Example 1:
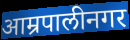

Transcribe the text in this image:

आम्रपालीनगर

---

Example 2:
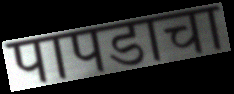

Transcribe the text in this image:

पापडाचा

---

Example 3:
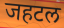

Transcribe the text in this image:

जहटल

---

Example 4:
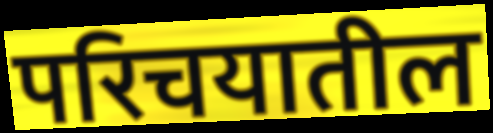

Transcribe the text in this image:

परिचयातील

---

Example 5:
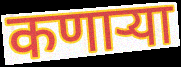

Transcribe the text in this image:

कणाऱ्या